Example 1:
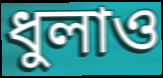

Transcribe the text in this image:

ধুলাও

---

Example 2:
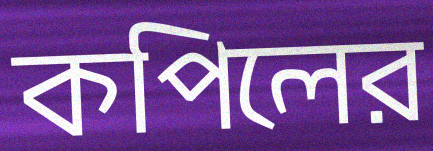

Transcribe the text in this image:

কপিলের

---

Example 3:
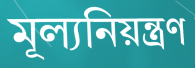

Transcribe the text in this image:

মূল্যনিয়ন্ত্রণ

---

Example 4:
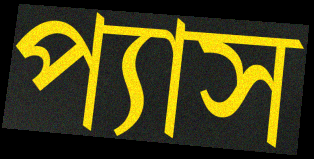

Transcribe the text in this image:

প্যাস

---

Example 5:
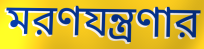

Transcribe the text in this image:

মরণযন্ত্রণার